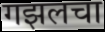
गझलचा